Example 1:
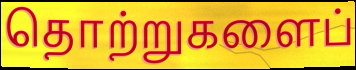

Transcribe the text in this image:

தொற்றுகளைப்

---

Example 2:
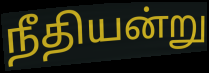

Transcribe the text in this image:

நீதியன்று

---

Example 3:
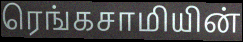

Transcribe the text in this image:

ரெங்கசாமியின்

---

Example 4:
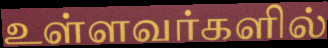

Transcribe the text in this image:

உள்ளவர்களில்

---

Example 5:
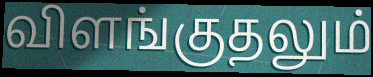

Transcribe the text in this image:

விளங்குதலும்